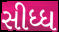
સીધ્ધ